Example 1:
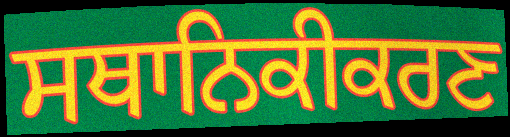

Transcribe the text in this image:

ਸਥਾਨਿਕੀਕਰਣ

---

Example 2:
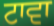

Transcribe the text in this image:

ਟਾਵਾ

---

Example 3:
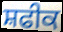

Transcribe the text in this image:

ਸ਼ਫੀਕ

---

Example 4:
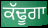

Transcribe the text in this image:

ਕੱਢੂਗਾ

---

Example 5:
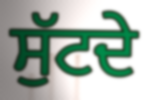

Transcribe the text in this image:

ਸੁੱਟਦੇ